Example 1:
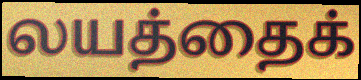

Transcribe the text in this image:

லயத்தைக்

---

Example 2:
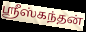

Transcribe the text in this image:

ஸ்ரீஸ்கந்தன்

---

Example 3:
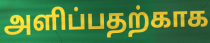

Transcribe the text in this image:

அளிப்பதற்காக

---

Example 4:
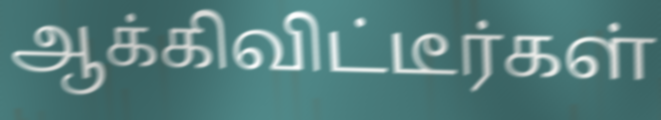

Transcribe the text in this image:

ஆக்கிவிட்டீர்கள்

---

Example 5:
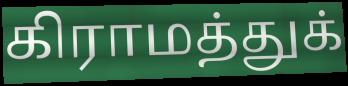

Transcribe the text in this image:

கிராமத்துக்